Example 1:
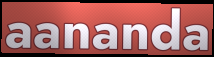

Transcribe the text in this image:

aananda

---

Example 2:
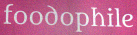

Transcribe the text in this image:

foodophile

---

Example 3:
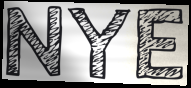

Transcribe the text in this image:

NYE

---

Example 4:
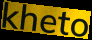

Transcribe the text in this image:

kheto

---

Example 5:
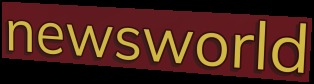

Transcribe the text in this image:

newsworld